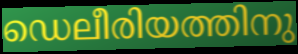
ഡെലീരിയത്തിനു